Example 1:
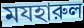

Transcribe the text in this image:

মযহারুল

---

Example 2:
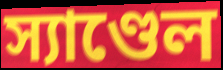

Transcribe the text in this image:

স্যাণ্ডেল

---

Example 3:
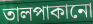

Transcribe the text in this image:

তালপাকানো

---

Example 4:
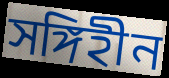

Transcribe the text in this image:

সঙ্গিহীন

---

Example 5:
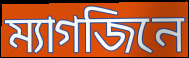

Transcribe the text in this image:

ম্যাগজিনে